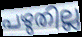
പഴുതില്ല